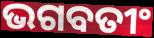
ଭଗବତୀଂ